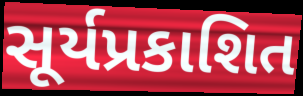
સૂર્યપ્રકાશિત